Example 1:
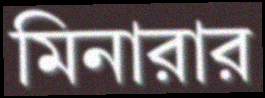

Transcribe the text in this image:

মিনারার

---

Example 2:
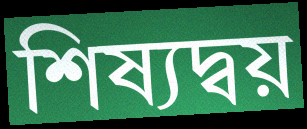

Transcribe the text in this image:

শিষ্যদ্বয়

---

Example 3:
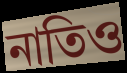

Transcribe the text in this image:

নাতিও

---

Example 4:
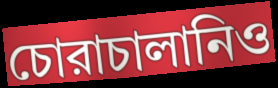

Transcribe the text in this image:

চোরাচালানিও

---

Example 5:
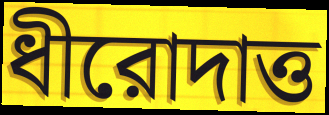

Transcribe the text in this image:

ধীরোদাত্ত